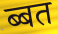
ब्बत